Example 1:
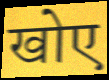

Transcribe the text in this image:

खोए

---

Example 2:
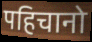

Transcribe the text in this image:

पहिचानो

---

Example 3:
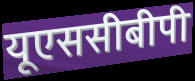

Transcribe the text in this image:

यूएससीबीपी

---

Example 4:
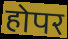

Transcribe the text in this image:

होपर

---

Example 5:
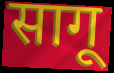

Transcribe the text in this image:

सागू